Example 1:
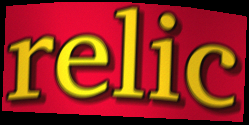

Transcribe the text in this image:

relic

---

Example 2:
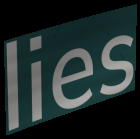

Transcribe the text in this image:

lies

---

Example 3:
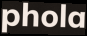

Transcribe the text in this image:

phola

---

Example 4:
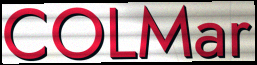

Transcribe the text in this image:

COLMar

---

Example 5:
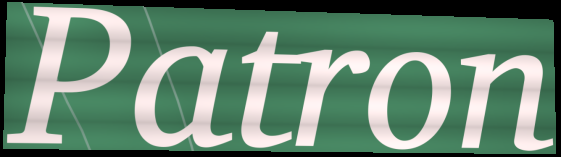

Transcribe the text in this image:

Patron